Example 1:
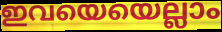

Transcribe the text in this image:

ഇവയെയെല്ലാം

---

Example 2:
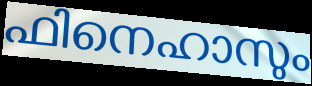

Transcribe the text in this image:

ഫിനെഹാസും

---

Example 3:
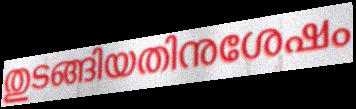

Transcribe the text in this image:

തുടങ്ങിയതിനുശേഷം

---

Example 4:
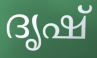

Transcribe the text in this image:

ദൃഷ്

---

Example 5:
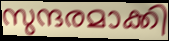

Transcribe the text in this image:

സുന്ദരമാക്കി